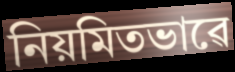
নিয়মিতভাৱে